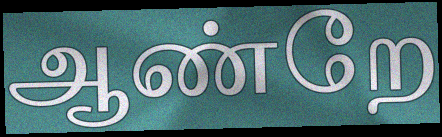
ஆண்றே